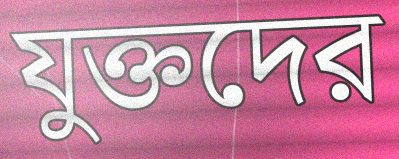
যুক্তদের